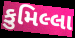
કુમિલ્લા